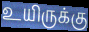
உயிருக்கு